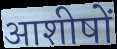
आशीषों